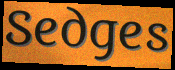
Sedges